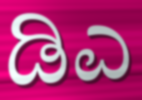
ಡಿಎ